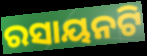
ରସାୟନଟି